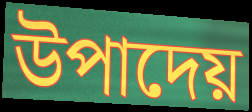
উপাদেয়